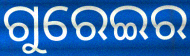
ଗୁରେଇର